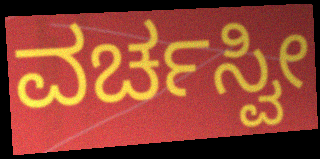
ವರ್ಚಸ್ವೀ